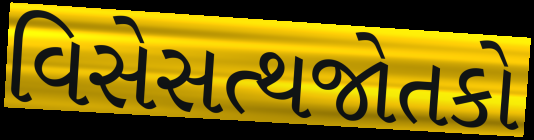
વિસેસત્થજોતકો